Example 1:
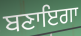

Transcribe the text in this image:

ਬਣਾਇਗਾ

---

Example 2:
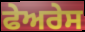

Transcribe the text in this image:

ਫੇਅਰੇਸ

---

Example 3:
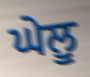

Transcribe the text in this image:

ਘੇਲੂ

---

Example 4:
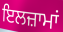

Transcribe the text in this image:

ਇਲਜ਼ਾਮਾਂ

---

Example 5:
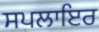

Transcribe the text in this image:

ਸਪਲਾਇਰ